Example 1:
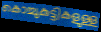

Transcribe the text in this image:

കൊച്ചുകുട്ടികളുള്ള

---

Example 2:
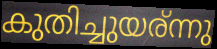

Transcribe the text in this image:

കുതിച്ചുയര്ന്നു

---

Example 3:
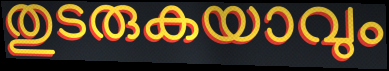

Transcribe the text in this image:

തുടരുകയാവും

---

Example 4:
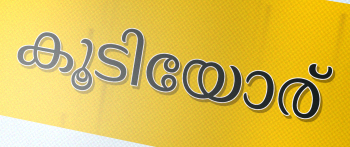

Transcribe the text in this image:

കൂടിയോര്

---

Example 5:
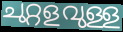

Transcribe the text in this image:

ചുറ്റളവുള്ള